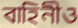
বাহিনীও